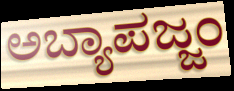
ಅಬ್ಯಾಪಜ್ಜಂ